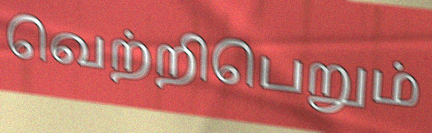
வெற்றிபெறும்